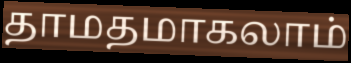
தாமதமாகலாம்